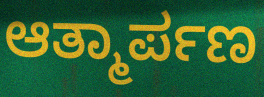
ಆತ್ಮಾರ್ಪಣ